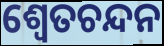
ଶ୍ୱେତଚନ୍ଦନ